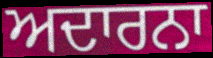
ਅਦਾਰਨਾ